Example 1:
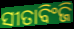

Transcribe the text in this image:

ସୀତାବିଂଜି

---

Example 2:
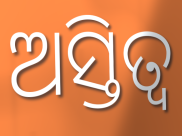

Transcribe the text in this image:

ଅସ୍ତିତ୍ଵ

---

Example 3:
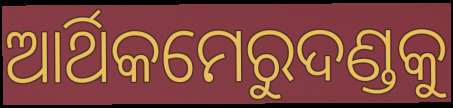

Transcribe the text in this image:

ଆର୍ଥିକମେରୁଦଣ୍ଡକୁ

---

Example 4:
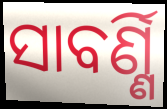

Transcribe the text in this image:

ସାବର୍ଣ୍ଣି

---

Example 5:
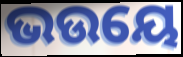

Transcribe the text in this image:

ଭଉୟେ